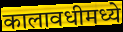
कालावधीमध्ये